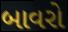
બાવરો